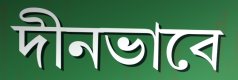
দীনভাবে